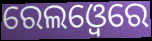
ରେଲଓ୍ୱେରେ